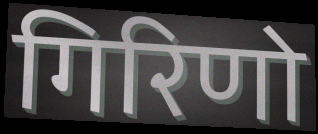
गिरिणो